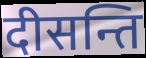
दीसन्ति